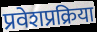
प्रवेशप्रक्रिया